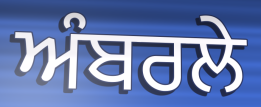
ਅੰਬਰਲੇ